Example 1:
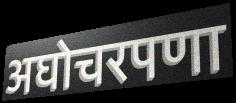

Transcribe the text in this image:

अघोचरपणा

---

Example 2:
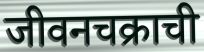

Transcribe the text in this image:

जीवनचक्राची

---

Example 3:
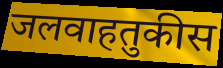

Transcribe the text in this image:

जलवाहतुकीस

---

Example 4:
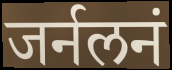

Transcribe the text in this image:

जर्नलनं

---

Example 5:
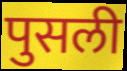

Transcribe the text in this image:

पुसली